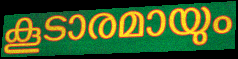
കൂടാരമായും